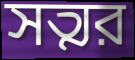
সত্মর